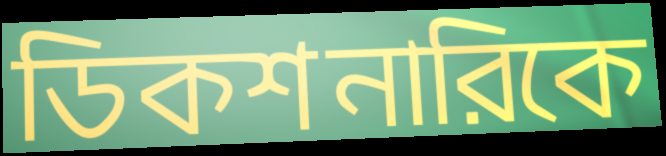
ডিকশনারিকে